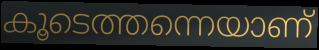
കൂടെത്തന്നെയാണ്